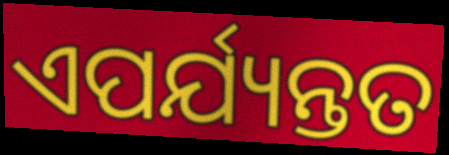
ଏପର୍ଯ୍ୟନ୍ତତ